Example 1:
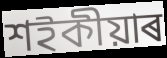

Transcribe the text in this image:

শইকীয়াৰ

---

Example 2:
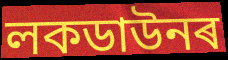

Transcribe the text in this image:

লকডাউনৰ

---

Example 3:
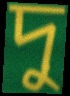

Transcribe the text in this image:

দু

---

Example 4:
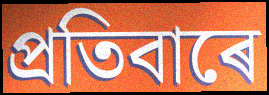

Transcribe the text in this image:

প্ৰতিবাৰে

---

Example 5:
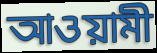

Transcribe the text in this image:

আওয়ামী